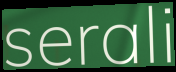
serali